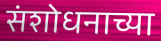
संशोधनाच्या